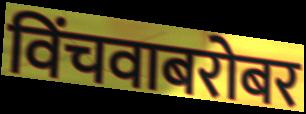
विंचवाबरोबर